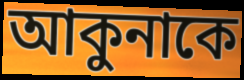
আকুনাকে